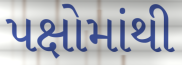
પક્ષોમાંથી